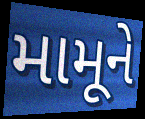
મામૂને